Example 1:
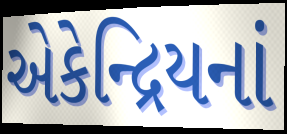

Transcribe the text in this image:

એકેન્દ્રિયનાં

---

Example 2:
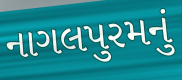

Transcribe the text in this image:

નાગલપુરમનું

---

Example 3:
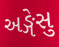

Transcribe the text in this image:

અઙ્ગેસુ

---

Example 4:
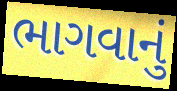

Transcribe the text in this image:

ભાગવાનું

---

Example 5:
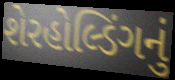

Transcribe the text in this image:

શેરહોલ્ડિંગનું